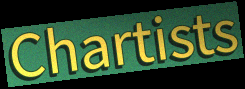
Chartists